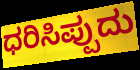
ಧರಿಸಿಪ್ಪುದು